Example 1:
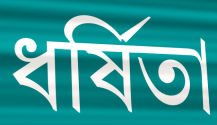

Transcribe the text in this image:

ধৰ্ষিতা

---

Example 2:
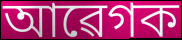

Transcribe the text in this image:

আৱেগক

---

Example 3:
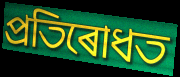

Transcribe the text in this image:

প্ৰতিৰোধত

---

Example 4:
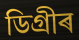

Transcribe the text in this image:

ডিগ্ৰীৰ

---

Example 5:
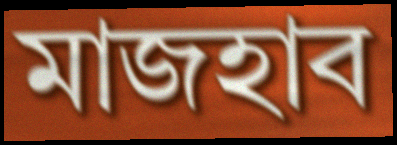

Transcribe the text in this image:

মাজহাব